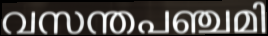
വസന്തപഞ്ചമി